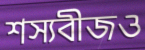
শস্যবীজও